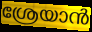
ശ്രേയാൻ